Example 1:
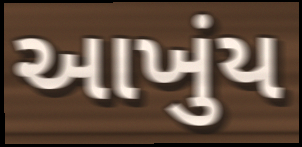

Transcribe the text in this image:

આખુંય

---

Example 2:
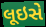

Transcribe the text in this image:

લૂઇસે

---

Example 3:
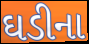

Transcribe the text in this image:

ઘડીના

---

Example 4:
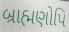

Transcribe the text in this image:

બ્રાહ્મણોપિ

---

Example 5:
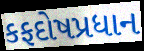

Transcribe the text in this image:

કફદોષપ્રધાન